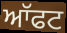
ਆੱਫਟ